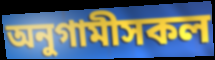
অনুগামীসকল